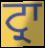
ਟ੍ਰਾ